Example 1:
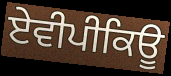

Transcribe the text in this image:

ਏਵੀਪੀਕਿਊ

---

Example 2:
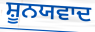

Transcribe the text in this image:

ਸ਼ੂਨਯਵਾਦ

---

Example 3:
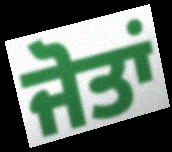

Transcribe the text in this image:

ਜੋਤਾਂ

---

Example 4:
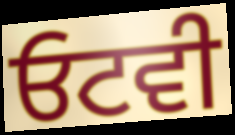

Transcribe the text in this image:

ਓਟਵੀ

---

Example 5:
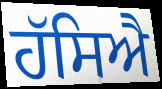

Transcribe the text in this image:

ਹੱਸਿਐ